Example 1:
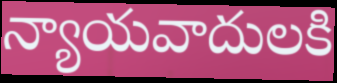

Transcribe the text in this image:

న్యాయవాదులకి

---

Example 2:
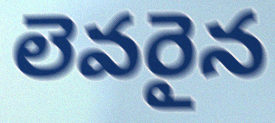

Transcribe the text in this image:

లెవరైన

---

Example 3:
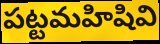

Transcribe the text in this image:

పట్టమహిషివి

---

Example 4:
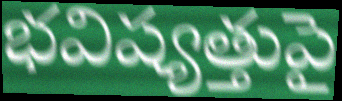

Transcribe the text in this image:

భవిష్యత్తుపై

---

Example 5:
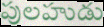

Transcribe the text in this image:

పులహుడు